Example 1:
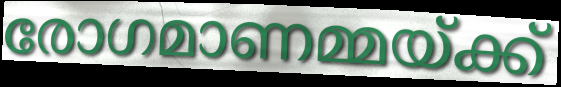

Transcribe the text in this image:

രോഗമാണമ്മയ്ക്ക്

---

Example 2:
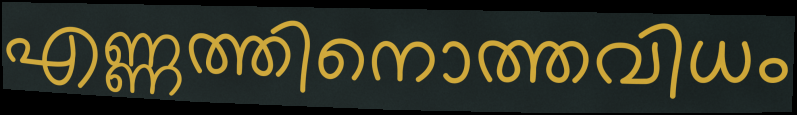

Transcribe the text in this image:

എണ്ണത്തിനൊത്തവിധം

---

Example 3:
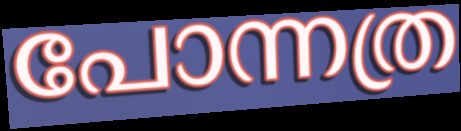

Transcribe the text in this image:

പോന്നത്ര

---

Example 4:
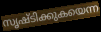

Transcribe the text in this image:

സൃഷ്ടിക്കുകയെന്ന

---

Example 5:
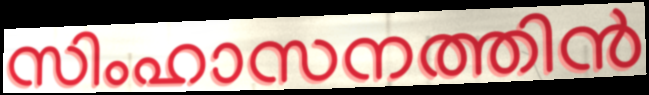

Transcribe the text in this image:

സിംഹാസനത്തിൻ